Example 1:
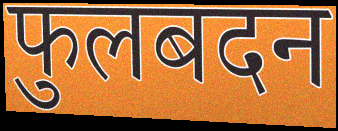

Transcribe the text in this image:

फुलबदन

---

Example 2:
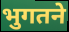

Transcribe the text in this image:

भुगतने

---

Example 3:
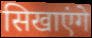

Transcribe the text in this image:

सिखाएंगे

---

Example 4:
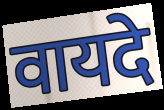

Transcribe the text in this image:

वायदे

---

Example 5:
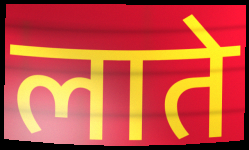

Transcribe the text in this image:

लाते